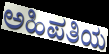
ಅಹಿಪತಿಯ